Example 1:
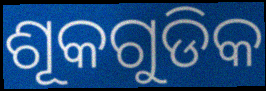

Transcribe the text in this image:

ଶୂକଗୁଡିକ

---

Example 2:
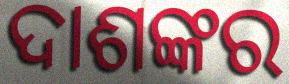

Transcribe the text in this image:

ଦାଶଙ୍କର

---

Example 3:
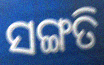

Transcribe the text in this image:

ସଙ୍ଗତି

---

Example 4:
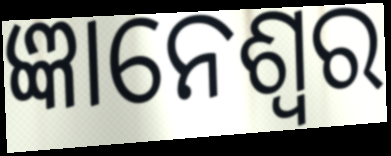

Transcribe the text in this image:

ଜ୍ଞାନେଶ୍ୱର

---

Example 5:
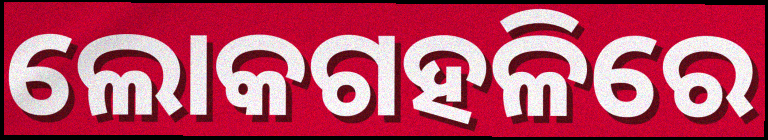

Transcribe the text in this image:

ଲୋକଗହଳିରେ